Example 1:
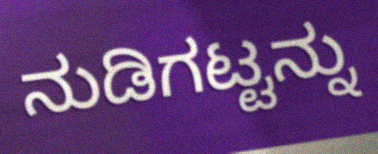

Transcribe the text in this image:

ನುಡಿಗಟ್ಟನ್ನು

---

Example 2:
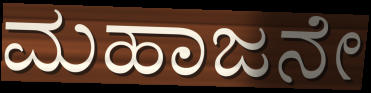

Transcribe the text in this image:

ಮಹಾಜನೇ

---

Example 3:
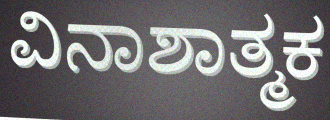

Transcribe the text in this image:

ವಿನಾಶಾತ್ಮಕ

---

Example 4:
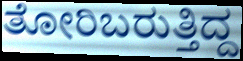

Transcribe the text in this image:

ತೋರಿಬರುತ್ತಿದ್ದ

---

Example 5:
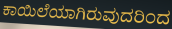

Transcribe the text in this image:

ಕಾಯಿಲೆಯಾಗಿರುವುದರಿಂದ